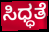
ಸಿಧ್ಧತೆ